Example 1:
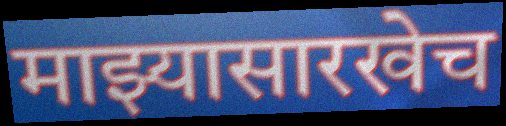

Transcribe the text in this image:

माझ्यासारखेच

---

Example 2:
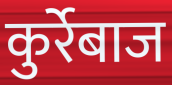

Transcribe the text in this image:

कुर्रेबाज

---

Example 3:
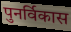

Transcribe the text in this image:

पुनर्विकास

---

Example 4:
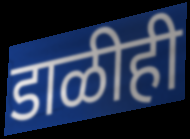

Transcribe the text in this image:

डाळीही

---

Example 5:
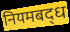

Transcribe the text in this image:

नियमबद्ध